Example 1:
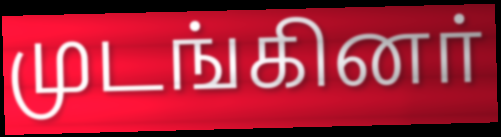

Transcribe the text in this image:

முடங்கினர்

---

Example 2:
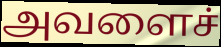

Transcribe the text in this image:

அவளைச்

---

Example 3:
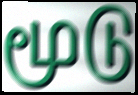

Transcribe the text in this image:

மூடு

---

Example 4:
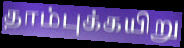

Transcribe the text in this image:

தாம்புக்கயிறு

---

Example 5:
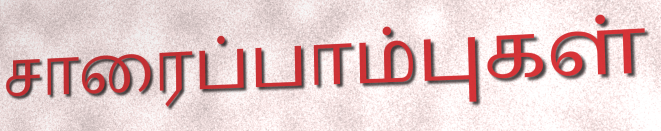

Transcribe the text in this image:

சாரைப்பாம்புகள்